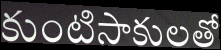
కుంటిసాకులతో